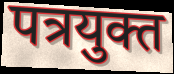
पत्रयुक्त